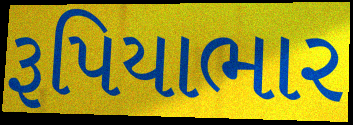
રૂપિયાભાર